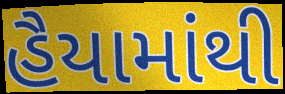
હૈયામાંથી